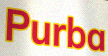
Purba